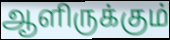
ஆளிருக்கும்